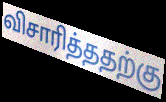
விசாரித்ததற்கு